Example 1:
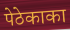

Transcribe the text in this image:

पेठेकाका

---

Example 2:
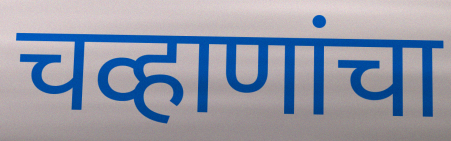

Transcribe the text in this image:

चव्हाणांचा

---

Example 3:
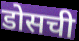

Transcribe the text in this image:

डोसची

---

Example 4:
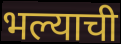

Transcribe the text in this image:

भल्याची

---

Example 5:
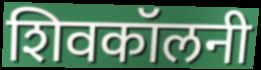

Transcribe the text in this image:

शिवकॉलनी